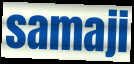
samaji